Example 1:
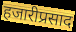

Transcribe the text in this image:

हजारीप्रसाद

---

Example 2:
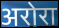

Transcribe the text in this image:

अरोरा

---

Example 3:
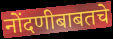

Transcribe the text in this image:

नोंदणीबाबतचे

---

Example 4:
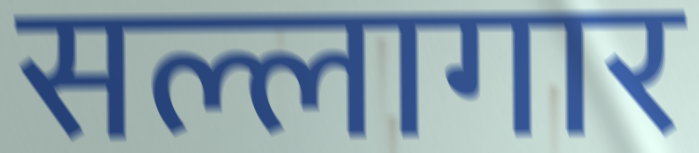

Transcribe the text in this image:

सल्लागार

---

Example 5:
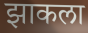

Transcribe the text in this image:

झाकला